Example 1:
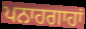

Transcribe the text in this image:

ਪਨਾਹਗਾਹਾਂ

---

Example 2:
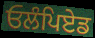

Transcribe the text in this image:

ਓਲੰਪਿਏਡ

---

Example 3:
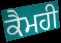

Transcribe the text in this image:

ਕੈਮਹੀ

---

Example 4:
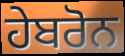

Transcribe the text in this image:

ਹੇਬਰੋਨ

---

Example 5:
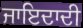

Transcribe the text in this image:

ਜਾਇਦਾਦੀ